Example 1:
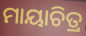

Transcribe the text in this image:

ମାୟାଚିତ୍ର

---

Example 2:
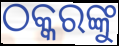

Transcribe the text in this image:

ଠକ୍କରଙ୍କୁ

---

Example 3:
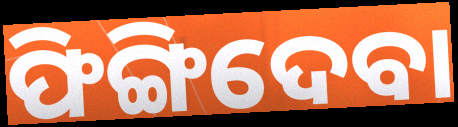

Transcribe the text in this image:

ଫିଙ୍ଗିଦେବା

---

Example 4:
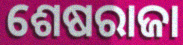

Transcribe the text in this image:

ଶେଷରାଜା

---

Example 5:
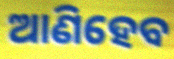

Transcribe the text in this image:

ଆଣିହେବ